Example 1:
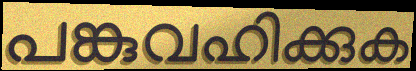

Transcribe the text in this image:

പങ്കുവഹിക്കുക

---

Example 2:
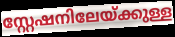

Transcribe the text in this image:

സ്റ്റേഷനിലേയ്ക്കുള്ള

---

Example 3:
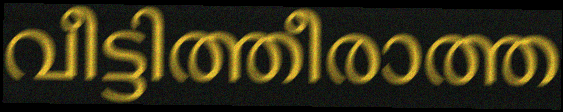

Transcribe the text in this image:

വീട്ടിത്തീരാത്ത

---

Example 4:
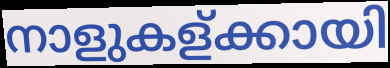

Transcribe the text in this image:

നാളുകള്ക്കായി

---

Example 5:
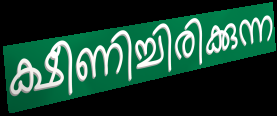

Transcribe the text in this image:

ക്ഷീണിച്ചിരിക്കുന്ന